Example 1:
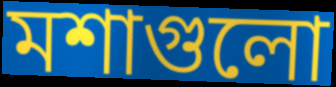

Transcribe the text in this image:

মশাগুলো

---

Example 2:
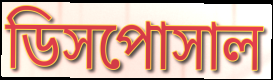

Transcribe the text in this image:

ডিসপোসাল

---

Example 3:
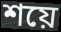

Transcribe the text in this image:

শয়ে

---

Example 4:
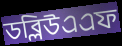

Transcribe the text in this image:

ডব্লিউএএফ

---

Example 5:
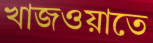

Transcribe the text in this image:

খাজওয়াতে